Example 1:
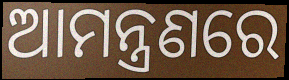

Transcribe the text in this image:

ଆମନ୍ତ୍ରଣରେ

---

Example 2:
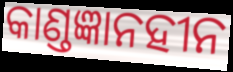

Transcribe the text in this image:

କାଣ୍ଡଜ୍ଞାନହୀନ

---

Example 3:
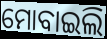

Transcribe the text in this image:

ମୋବାଇଲି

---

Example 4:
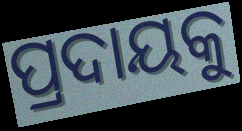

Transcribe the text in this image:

ପ୍ରଦାୟକୁ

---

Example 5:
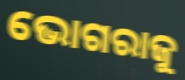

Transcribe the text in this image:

ଭୋଗରାଜୁ